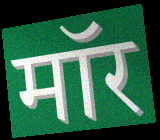
मॉर